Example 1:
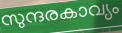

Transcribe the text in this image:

സുന്ദരകാവ്യം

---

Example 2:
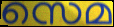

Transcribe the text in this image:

സെമ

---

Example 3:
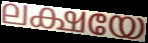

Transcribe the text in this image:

ലക്ഷയേ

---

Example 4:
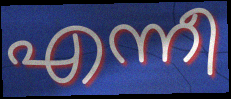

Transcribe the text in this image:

എന്നീ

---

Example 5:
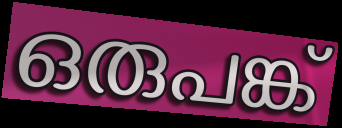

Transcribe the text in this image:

ഒരുപങ്ക്